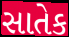
સાતેક